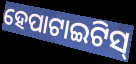
ହେପାଟାଇଟିସ୍